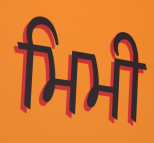
ਮਿਮੀ